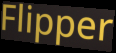
Flipper